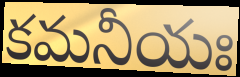
కమనీయః